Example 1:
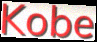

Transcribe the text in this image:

Kobe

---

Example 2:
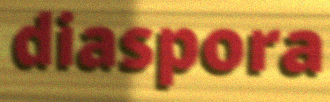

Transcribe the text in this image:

diaspora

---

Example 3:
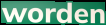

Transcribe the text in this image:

worden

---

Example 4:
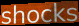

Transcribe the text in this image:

shocks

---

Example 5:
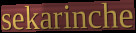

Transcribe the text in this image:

sekarinche